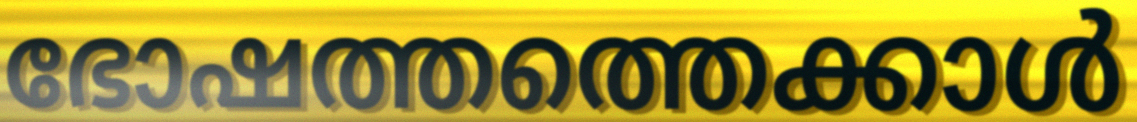
ഭോഷത്തത്തെക്കാൾ